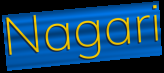
Nagari